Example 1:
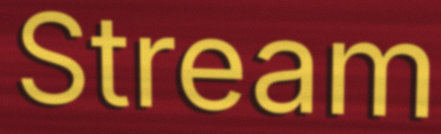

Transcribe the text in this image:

Stream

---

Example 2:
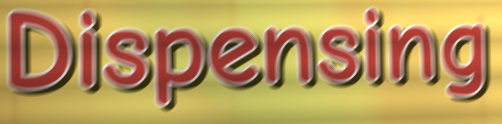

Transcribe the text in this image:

Dispensing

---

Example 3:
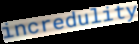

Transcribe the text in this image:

incredulity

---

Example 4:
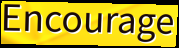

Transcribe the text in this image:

Encourage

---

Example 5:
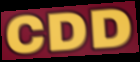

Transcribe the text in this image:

CDD